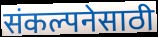
संकल्पनेसाठी